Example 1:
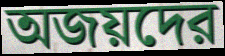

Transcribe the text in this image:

অজয়দের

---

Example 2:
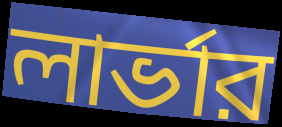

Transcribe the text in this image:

লার্ভার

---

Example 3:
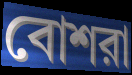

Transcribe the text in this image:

বোশরা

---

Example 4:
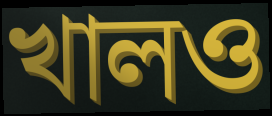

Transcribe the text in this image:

খালও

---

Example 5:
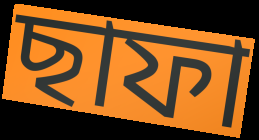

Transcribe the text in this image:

ছাফা